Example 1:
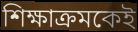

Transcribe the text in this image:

শিক্ষাক্রমকেই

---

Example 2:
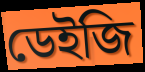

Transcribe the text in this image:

ডেইজি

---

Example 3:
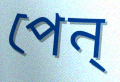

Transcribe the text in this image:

পেন্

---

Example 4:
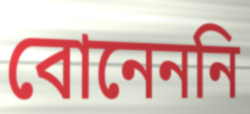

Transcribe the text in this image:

বোনেননি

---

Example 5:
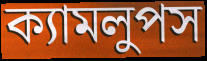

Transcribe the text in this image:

ক্যামলুপস